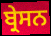
ਬ੍ਰੇਸਨ